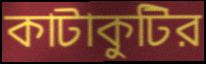
কাটাকুটির